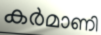
കർമാണി